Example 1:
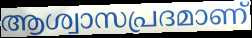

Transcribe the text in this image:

ആശ്വാസപ്രദമാണ്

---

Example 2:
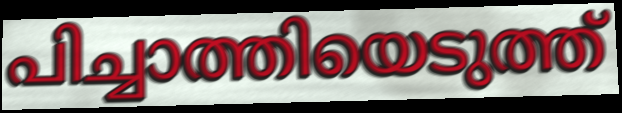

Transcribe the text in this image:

പിച്ചാത്തിയെടുത്ത്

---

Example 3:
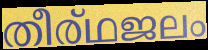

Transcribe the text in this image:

തീര്ഥജലം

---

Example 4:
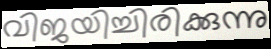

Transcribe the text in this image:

വിജയിച്ചിരിക്കുന്നു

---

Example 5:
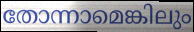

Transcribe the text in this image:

തോന്നാമെങ്കിലും